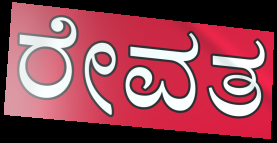
ರೇವತ